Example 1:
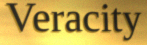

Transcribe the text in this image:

Veracity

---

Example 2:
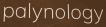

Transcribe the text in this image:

palynology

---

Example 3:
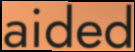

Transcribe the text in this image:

aided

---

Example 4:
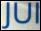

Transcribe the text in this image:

JUI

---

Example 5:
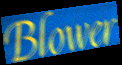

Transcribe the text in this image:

Blower